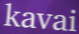
kavai